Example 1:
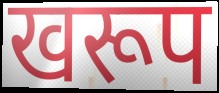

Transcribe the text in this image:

खरूप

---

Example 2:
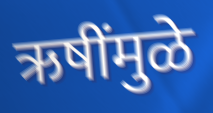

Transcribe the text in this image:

ऋषींमुळे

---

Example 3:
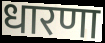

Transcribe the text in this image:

धारणा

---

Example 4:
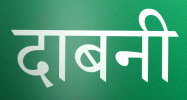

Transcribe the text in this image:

दाबनी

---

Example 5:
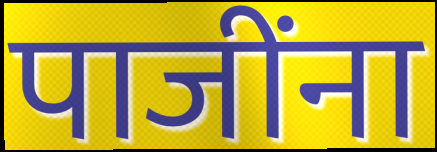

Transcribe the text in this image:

पाजींना